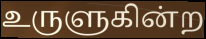
உருளுகின்ற